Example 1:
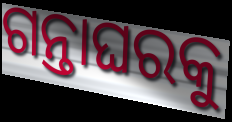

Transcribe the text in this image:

ଗନ୍ତାଘରକୁ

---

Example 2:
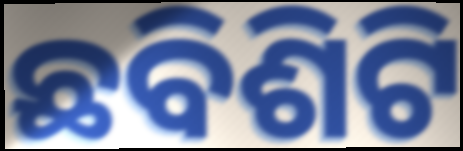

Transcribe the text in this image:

ଛବିଶିଟି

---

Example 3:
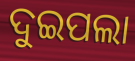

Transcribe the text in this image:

ଦୁଇପଲା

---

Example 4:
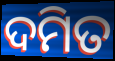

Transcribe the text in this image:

ଦମିତ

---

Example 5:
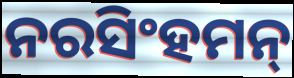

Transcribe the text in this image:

ନରସିଂହମନ୍